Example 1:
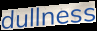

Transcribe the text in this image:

dullness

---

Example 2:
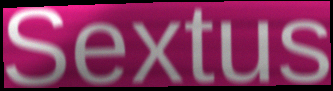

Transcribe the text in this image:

Sextus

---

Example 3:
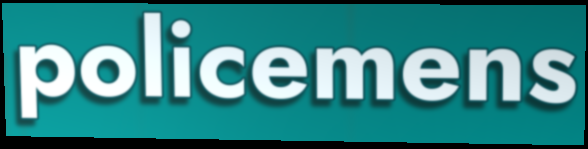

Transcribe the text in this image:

policemens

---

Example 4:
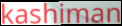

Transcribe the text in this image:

kashiman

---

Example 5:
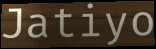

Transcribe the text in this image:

Jatiyo